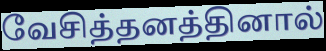
வேசித்தனத்தினால்